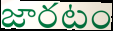
జారటం